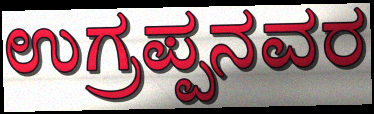
ಉಗ್ರಪ್ಪನವರ